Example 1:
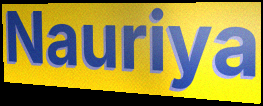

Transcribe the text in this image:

Nauriya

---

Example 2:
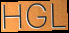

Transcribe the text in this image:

HGL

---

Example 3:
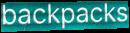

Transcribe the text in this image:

backpacks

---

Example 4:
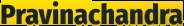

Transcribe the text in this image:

Pravinachandra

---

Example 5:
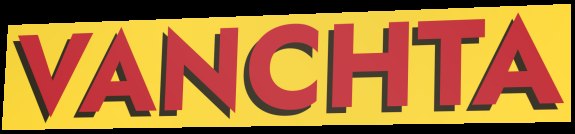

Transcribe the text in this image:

VANCHTA